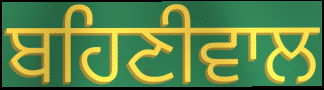
ਬਹਿਣੀਵਾਲ